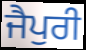
ਜੈਪੁਰੀ